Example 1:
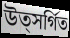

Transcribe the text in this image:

উত্সর্গিত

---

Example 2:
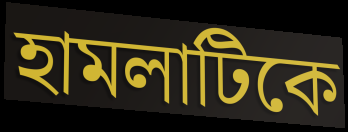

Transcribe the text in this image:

হামলাটিকে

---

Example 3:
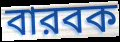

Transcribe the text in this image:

বারবক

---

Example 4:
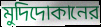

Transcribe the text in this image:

মুদিদোকানের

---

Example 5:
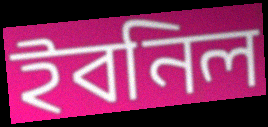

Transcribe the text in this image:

ইবনিল